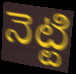
నెట్టి